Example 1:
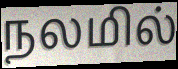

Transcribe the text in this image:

நலமில்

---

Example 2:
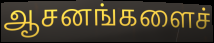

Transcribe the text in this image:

ஆசனங்களைச்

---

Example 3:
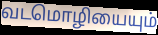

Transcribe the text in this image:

வடமொழியையும்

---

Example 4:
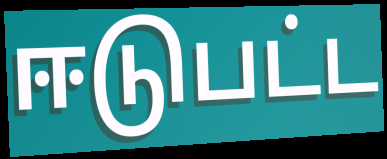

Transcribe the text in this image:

ஈடுபட்ட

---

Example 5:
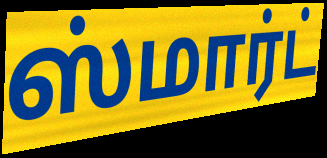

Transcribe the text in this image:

ஸ்மார்ட்